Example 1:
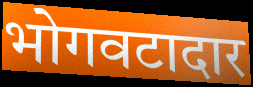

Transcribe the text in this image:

भोगवटादार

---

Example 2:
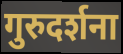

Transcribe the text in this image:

गुरुदर्शना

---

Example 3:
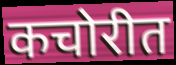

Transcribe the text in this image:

कचोरीत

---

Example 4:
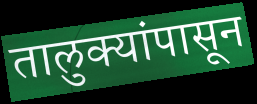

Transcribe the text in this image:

तालुक्यांपासून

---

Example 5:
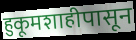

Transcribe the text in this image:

हुकूमशाहीपासून